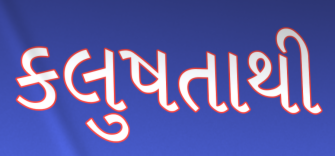
કલુષતાથી